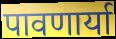
पावणार्या